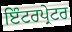
ਇੰਟਰਪ੍ਰੇਟਰ